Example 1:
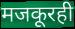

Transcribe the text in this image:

मजकूरही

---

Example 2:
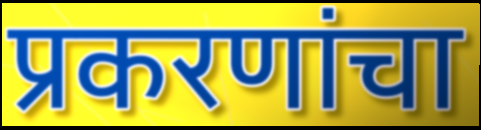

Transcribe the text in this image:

प्रकरणांचा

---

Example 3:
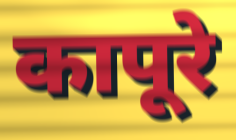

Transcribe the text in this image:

कापूरे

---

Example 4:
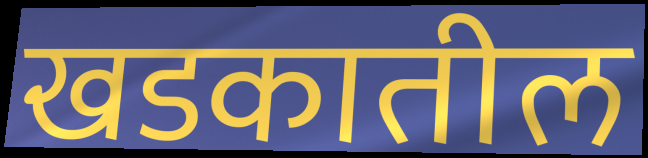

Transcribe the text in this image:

खडकातील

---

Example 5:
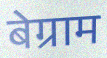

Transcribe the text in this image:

बेग्राम